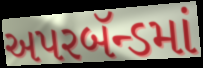
અપરબૅન્ડમાં